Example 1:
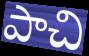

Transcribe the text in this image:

పాచి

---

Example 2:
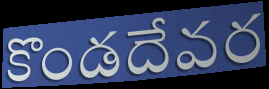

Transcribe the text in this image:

కొండదేవర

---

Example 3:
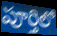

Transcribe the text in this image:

పూర్తిలో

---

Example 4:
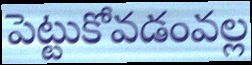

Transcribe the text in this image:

పెట్టుకోవడంవల్ల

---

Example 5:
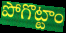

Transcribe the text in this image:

పోగొట్టాం